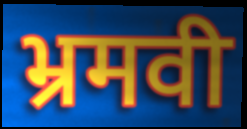
भ्रमवी